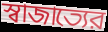
স্বাজাত্যের